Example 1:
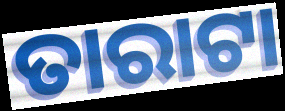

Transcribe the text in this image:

ତାରାଟା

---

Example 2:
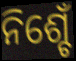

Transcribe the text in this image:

ନିଶ୍ଚେଁ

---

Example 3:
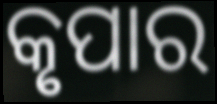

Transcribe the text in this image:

କୃପାର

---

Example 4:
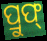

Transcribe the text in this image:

ପ୍ରୁଫ୍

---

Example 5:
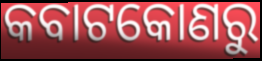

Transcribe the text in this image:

କବାଟକୋଣରୁ